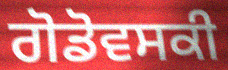
ਗੋਡੋਵਸਕੀ